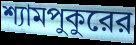
শ্যামপুকুরের